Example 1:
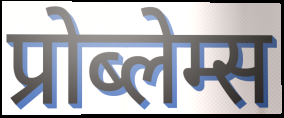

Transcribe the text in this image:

प्रोब्लेम्स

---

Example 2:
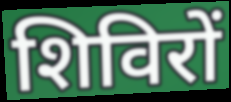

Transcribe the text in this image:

शिविरों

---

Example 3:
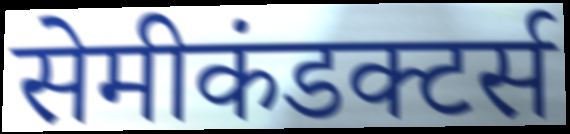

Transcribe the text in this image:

सेमीकंडक्टर्स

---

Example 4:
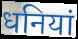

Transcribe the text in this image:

धनियां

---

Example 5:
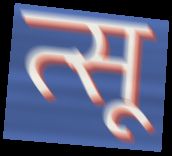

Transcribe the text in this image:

त्सू